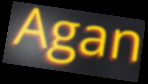
Agan